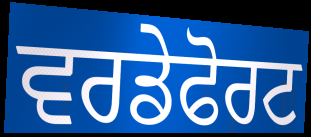
ਵਰਡੇਫੋਰਟ